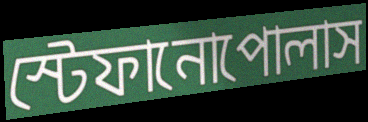
স্টেফানোপোলাস